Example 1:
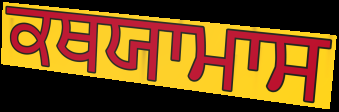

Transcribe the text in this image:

ਕਥਯਾਮਾਸ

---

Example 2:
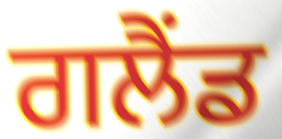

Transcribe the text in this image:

ਗਲੈਂਡ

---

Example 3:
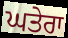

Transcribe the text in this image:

ਘਤੇਰਾ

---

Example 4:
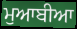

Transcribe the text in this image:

ਮੁਆਬੀਆ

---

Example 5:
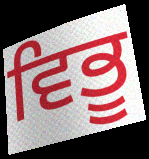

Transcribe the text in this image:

ਵਿਭੂ